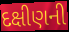
દક્ષીણની